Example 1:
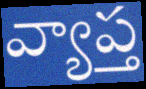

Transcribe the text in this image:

వ్యాప్త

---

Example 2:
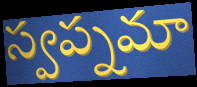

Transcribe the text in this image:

స్వప్నమా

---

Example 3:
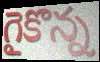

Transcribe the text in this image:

గైకొన్న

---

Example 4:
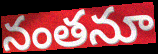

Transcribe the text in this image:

నంతనూ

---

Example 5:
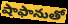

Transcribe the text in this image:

షాఫానుతో